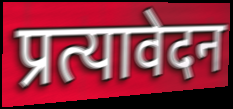
प्रत्यावेदन